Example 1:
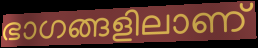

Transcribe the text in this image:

ഭാഗങ്ങളിലാണ്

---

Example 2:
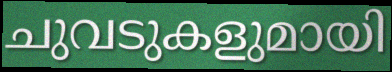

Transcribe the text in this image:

ചുവടുകളുമായി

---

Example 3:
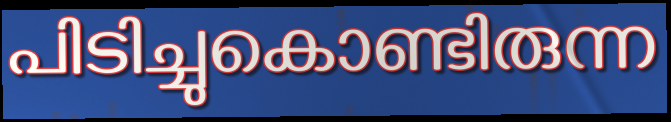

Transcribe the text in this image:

പിടിച്ചുകൊണ്ടിരുന്ന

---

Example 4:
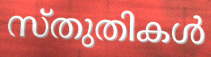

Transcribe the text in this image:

സ്തുതികൾ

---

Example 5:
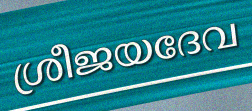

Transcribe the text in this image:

ശ്രീജയദേവ